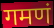
गमणं